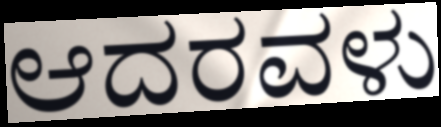
ಆದರವಳು